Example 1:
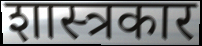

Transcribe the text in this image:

शास्त्रकार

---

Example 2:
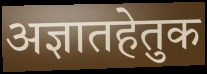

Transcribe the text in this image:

अज्ञातहेतुक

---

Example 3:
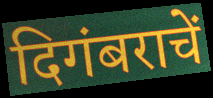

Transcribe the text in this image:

दिगंबराचें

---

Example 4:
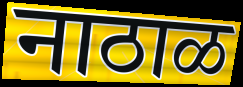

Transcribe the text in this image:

नाठाळ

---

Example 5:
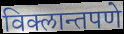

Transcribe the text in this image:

विक्लान्तपणे